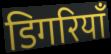
डिगरियाँ